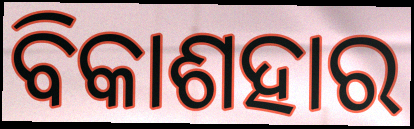
ବିକାଶହାର